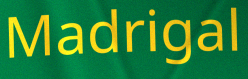
Madrigal